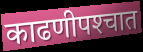
काढणीपश्‍चात